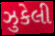
ઝુકેલી